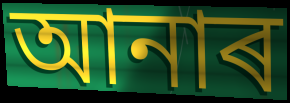
আনাৰ